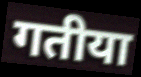
गतीया